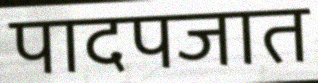
पादपजात